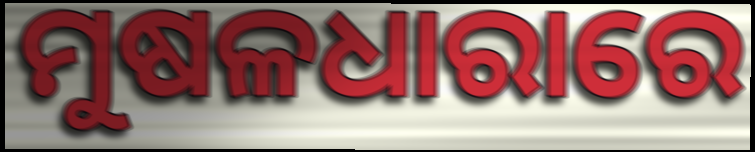
ମୁଷଳଧାରାରେ